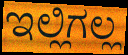
ಇಲ್ಲಿಗಲ್ಲ